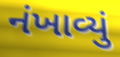
નંખાવ્યું